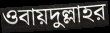
ওবায়দুল্লাহর